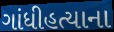
ગાંધીહત્યાના